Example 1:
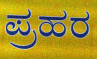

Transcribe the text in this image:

ಪ್ರಹರ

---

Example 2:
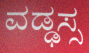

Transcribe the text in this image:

ವಡ್ಢಸ್ಸ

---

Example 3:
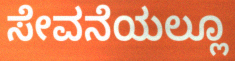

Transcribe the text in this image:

ಸೇವನೆಯಲ್ಲೂ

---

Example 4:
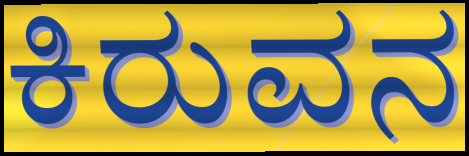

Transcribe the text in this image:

ಕಿರುವನ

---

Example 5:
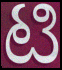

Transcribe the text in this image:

ಟಿ